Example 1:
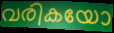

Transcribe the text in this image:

വരികയോ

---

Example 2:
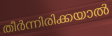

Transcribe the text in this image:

തീർന്നിരിക്കയാൽ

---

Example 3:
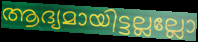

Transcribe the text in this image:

ആദ്യമായിട്ടല്ലല്ലോ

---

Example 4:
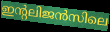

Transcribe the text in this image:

ഇന്റലിജൻസിലെ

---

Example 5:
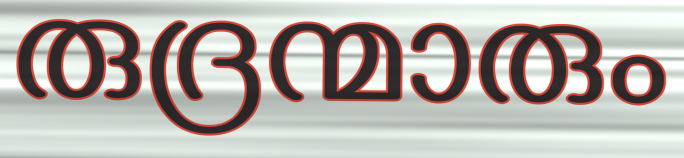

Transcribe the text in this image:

രുദ്രന്മാരും